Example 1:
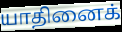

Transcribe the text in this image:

யாதினைக்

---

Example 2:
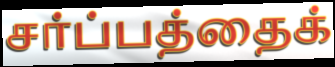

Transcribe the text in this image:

சர்ப்பத்தைக்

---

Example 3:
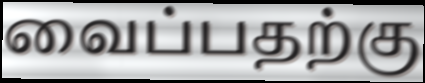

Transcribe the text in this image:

வைப்பதற்கு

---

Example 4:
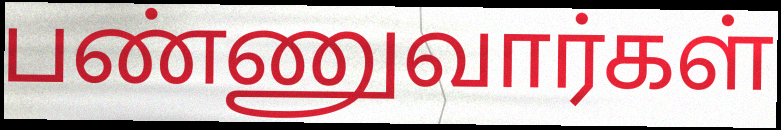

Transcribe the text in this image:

பண்ணுவார்கள்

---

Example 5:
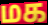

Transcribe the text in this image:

மக